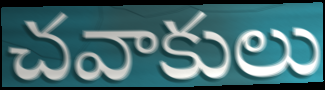
చవాకులు